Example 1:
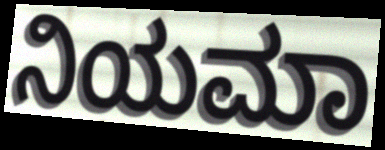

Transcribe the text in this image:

ನಿಯಮಾ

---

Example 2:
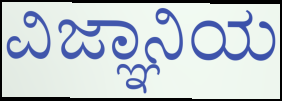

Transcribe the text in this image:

ವಿಜ್ಞಾನಿಯ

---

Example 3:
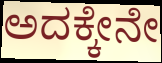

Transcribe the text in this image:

ಅದಕ್ಕೇನೇ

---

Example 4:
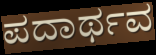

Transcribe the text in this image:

ಪದಾರ್ಥವ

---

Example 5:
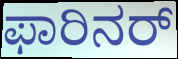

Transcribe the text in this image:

ಫಾರಿನರ್